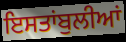
ਇਸਤਾਂਬੁਲੀਆਂ